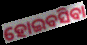
ହୋଇବସିବା